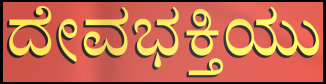
ದೇವಭಕ್ತಿಯು